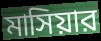
মাসিয়ার